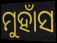
ମୁହାଁସ